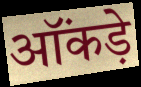
ऑंकड़े